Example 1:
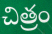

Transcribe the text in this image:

చిత్రం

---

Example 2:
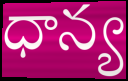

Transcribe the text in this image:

ధాన్య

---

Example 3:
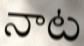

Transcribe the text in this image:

నాట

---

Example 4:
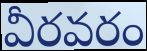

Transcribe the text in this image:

వీరవరం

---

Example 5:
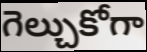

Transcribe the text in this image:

గెల్చుకోగా